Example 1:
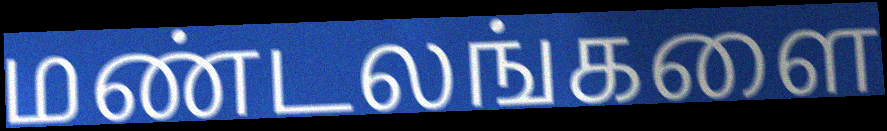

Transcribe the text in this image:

மண்டலங்களை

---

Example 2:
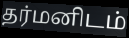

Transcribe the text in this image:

தர்மனிடம்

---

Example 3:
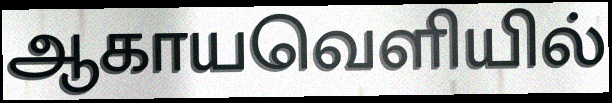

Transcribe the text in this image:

ஆகாயவெளியில்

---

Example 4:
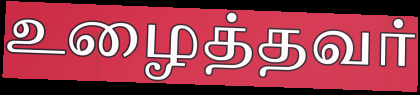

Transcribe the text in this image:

உழைத்தவர்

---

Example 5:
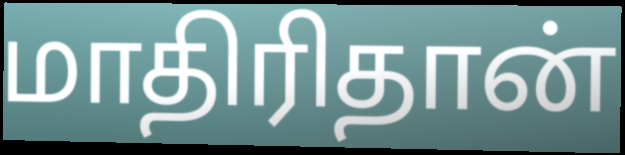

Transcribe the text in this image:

மாதிரிதான்